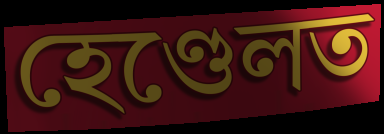
হেণ্ডেলত